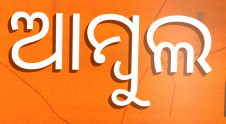
ଆମ୍ବୁଲ